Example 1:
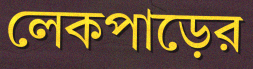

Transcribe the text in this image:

লেকপাড়ের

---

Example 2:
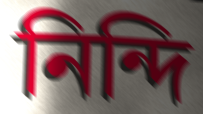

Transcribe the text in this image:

নিন্দি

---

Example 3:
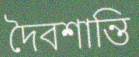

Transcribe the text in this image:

দৈবশান্তি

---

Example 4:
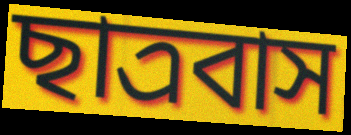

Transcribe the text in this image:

ছাত্রবাস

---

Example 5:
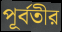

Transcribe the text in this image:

পূর্বতীর